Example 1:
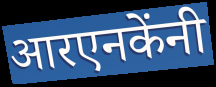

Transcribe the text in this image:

आरएनकेंनी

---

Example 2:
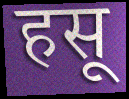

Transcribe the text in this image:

हसू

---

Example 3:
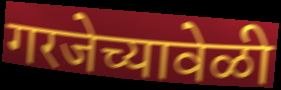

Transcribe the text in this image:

गरजेच्यावेळी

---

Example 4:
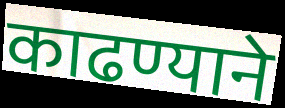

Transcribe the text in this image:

काढण्याने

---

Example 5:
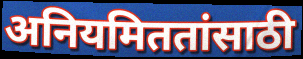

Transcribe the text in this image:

अनियमिततांसाठी